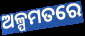
ଅଳ୍ପମତରେ